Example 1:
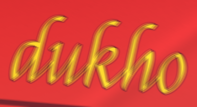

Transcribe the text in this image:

dukho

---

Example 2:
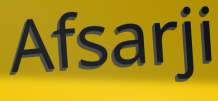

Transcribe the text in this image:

Afsarji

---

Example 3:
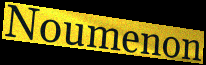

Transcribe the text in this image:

Noumenon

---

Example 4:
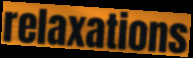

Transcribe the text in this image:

relaxations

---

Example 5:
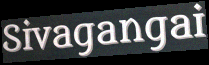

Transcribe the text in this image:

Sivagangai